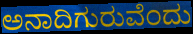
ಅನಾದಿಗುರುವೆಂದು